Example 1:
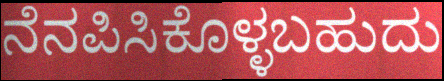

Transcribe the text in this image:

ನೆನಪಿಸಿಕೊಳ್ಳಬಹುದು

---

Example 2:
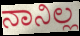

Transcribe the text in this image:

ನಾನಿಲ್ಲ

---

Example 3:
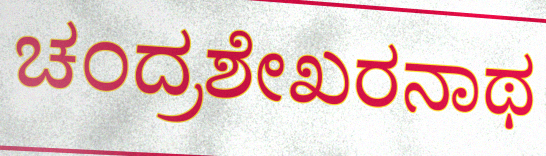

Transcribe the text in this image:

ಚಂದ್ರಶೇಖರನಾಥ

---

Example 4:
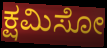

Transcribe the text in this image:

ಕ್ಷಮಿಸೋ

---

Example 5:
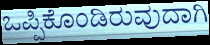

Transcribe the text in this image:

ಒಪ್ಪಿಕೊಂಡಿರುವುದಾಗಿ